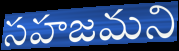
సహజమని